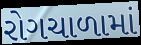
રોગચાળામાં